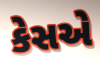
કેસએ